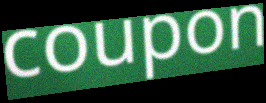
coupon